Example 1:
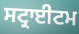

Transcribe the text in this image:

ਸਟ੍ਰਾਈਟਮ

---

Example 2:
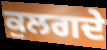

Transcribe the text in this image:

ਕੁਲਗਦੇ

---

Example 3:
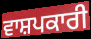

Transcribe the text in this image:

ਵਾਸ਼ਪਕਾਰੀ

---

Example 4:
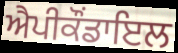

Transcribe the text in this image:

ਐਪੀਕੌਂਡਾਇਲ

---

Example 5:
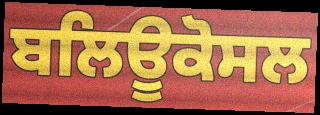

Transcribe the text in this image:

ਬਲਿਊਕੋਸਲ